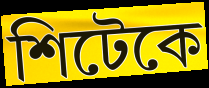
শিটেকে